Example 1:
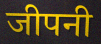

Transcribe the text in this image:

जीपनी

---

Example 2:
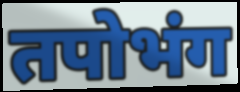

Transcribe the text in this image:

तपोभंग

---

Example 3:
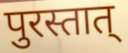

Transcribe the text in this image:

पुरस्तात्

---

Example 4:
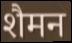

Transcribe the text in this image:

शैमन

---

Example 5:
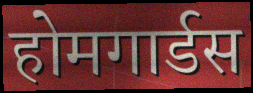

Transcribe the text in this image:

होमगार्डस